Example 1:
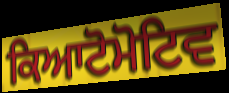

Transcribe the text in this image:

ਕਿਆਟੋਮੋਟਿਵ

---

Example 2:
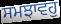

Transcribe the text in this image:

ਸਮਝਾਵਹੁ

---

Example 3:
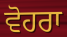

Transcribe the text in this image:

ਵੋਹਰਾ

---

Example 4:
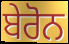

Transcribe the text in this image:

ਬੇਰੋਨ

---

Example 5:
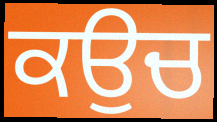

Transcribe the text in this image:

ਕਉਚ